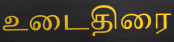
உடைதிரை